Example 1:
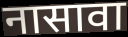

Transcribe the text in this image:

नासावा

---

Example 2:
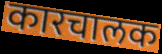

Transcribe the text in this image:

कारचालक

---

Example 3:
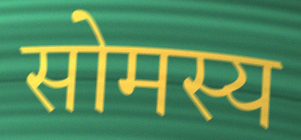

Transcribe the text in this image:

सोमस्य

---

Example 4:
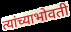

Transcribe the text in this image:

त्यांच्याभोवती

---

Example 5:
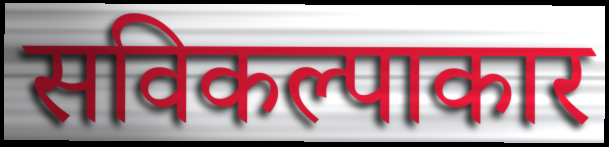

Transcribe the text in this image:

सविकल्पाकार